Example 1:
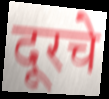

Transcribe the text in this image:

दूरचे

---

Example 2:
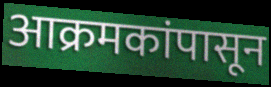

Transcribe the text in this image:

आक्रमकांपासून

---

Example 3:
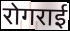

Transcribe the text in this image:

रोगराई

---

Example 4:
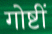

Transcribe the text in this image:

गोष्टीं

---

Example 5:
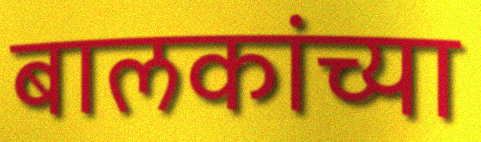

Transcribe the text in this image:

बालकांच्या